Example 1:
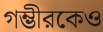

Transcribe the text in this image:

গম্ভীরকেও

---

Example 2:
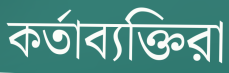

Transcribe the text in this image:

কর্তাব্যক্তিরা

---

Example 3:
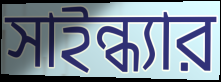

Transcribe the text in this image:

সাইন্ধ্যার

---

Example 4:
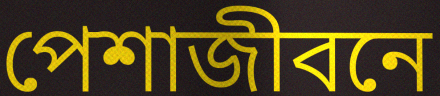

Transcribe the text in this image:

পেশাজীবনে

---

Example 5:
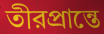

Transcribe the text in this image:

তীরপ্রান্তে